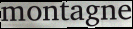
montagne